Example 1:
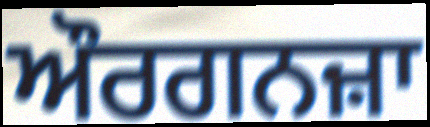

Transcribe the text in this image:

ਔਰਗਨਜ਼ਾ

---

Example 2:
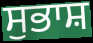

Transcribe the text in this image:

ਸੁਭਾਸ਼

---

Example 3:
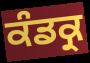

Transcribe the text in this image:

ਕੰਡਕ੍ਰ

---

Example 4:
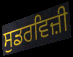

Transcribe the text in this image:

ਸੁਡਰਵਿਜ਼ੀ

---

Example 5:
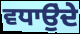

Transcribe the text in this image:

ਵਧਾਉੁਂਦੇ